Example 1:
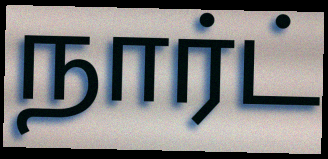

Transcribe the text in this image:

நார்ட்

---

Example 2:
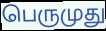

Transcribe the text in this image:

பெருமுது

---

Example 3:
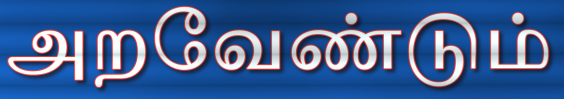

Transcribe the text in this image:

அறவேண்டும்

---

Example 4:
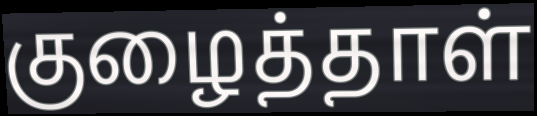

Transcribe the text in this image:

குழைத்தாள்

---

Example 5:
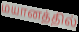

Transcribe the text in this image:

மயானத்தில்